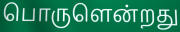
பொருளென்றது